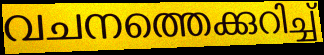
വചനത്തെക്കുറിച്ച്